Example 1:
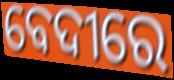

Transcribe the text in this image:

ବେଦୀରେ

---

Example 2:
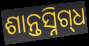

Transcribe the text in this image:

ଶାନ୍ତସ୍ନିଗ୍‌ଧ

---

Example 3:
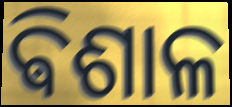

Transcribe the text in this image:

ଵିଶାଳ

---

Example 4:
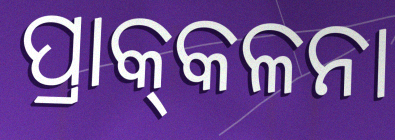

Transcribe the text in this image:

ପ୍ରାକ୍‌କଳନା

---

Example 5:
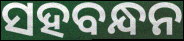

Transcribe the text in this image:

ସହବନ୍ଧନ